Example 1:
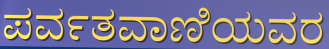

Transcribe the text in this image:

ಪರ್ವತವಾಣಿಯವರ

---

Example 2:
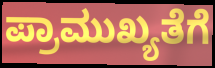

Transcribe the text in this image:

ಪ್ರಾಮುಖ್ಯತೆಗೆ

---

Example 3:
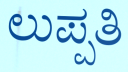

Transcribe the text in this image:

ಲುಪ್ಪತಿ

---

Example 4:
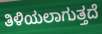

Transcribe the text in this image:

ತಿಳಿಯಲಾಗುತ್ತದೆ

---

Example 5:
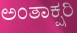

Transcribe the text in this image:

ಅಂತಾಕ್ಷರಿ